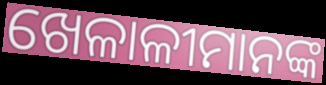
ଖେଳାଳୀମାନଙ୍କ